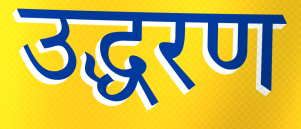
उद्धरण